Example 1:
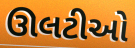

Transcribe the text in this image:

ઊલટીઓ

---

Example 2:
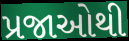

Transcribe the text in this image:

પ્રજાઓથી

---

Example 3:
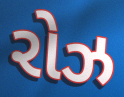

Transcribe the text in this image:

રોઝ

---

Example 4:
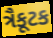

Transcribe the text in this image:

ત્રૈકૂટક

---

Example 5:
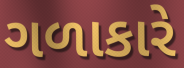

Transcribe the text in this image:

ગળાકારે